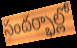
సందర్భాల్లో